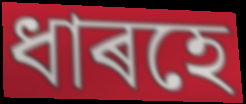
ধাৰহে